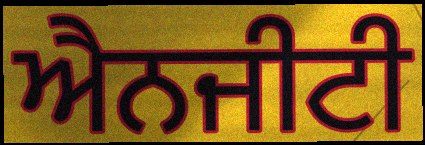
ਐਨਜੀਟੀ